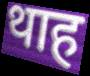
थाह